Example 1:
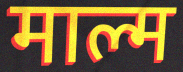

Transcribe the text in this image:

माल्म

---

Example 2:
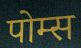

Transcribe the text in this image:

पोम्स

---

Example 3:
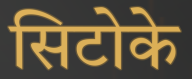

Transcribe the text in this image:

सिटोके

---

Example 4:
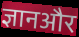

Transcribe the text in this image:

ज्ञानऔर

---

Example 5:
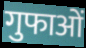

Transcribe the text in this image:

गुफाओं